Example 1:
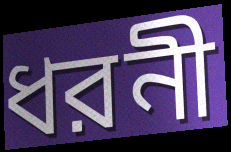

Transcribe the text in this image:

ধরনী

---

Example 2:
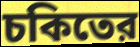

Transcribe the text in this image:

চকিতের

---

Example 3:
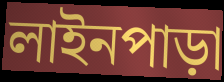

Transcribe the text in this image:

লাইনপাড়া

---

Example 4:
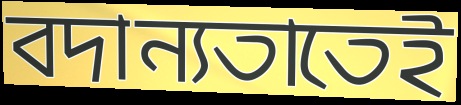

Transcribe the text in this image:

বদান্যতাতেই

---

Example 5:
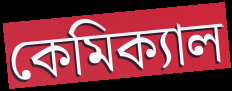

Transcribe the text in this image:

কেমিক্যাল